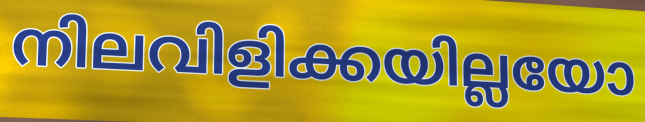
നിലവിളിക്കയില്ലയോ